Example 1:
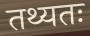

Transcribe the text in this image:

तथ्यतः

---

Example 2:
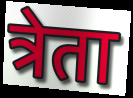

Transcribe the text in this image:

त्रेता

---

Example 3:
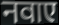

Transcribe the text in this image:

नवाए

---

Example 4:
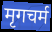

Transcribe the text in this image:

मृगचर्म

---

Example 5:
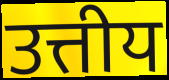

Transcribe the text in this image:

उत्तीय